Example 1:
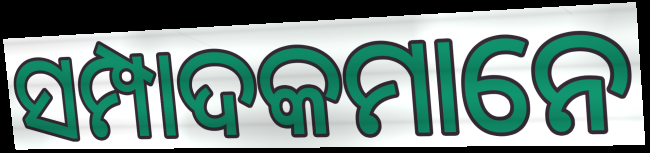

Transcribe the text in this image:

ସମ୍ପାଦକମାନେ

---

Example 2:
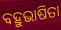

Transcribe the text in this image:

ବହୁଭାଷିତା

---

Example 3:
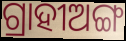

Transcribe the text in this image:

ଗ୍ରାହୀଅଙ୍ଗ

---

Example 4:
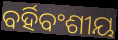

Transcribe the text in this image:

ବର୍ହିବଂଶୀୟ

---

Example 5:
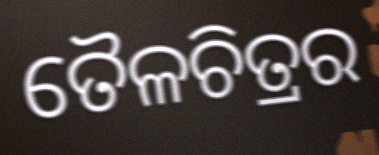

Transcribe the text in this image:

ତୈଳଚିତ୍ରର